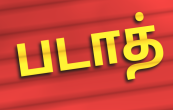
படாத்